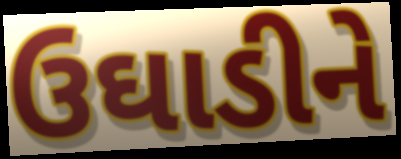
ઉઘાડીને